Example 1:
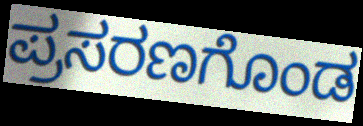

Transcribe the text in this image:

ಪ್ರಸರಣಗೊಂಡ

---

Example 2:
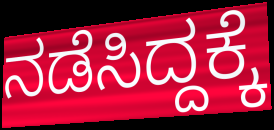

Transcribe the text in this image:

ನಡೆಸಿದ್ದಕ್ಕೆ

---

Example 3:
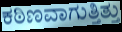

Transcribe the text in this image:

ಕಠಿಣವಾಗುತ್ತಿತ್ತು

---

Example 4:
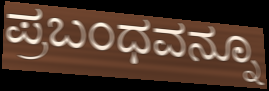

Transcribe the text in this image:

ಪ್ರಬಂಧವನ್ನೂ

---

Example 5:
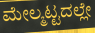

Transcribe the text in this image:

ಮೇಲ್ಮಟ್ಟದಲ್ಲೇ